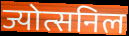
ज्योत्सनिल